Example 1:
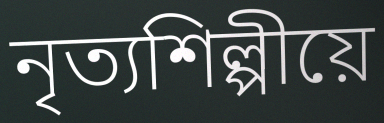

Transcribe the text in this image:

নৃত্যশিল্পীয়ে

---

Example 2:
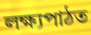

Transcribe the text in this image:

লক্ষ্যপাঠত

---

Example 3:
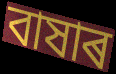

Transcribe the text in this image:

বাষাৰ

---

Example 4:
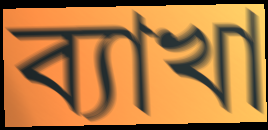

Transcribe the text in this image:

ব্যাখা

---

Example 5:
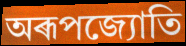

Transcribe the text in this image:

অৰূপজ্যোতি